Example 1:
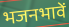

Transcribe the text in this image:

भजनभावें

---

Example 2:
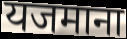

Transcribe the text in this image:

यजमाना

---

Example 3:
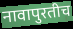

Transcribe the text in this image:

नावापुरतीच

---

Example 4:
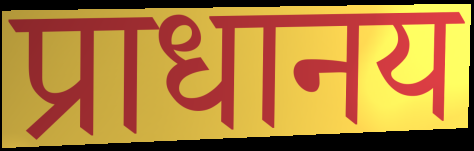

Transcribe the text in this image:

प्राधानय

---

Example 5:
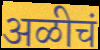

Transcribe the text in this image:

अळीचं